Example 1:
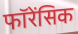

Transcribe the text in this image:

फॉरेंसिक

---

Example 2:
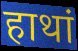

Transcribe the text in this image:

हाथां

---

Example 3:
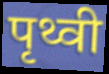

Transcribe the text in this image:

पृथ्‍वी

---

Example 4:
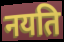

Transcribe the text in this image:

नयति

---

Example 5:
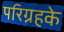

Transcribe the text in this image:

परिग्रहके